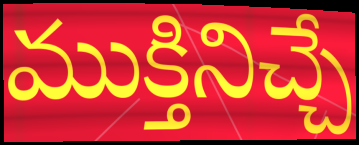
ముక్తినిచ్చే